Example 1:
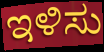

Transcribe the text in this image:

ಇಳಿಸು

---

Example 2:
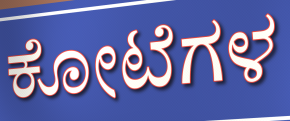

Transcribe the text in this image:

ಕೋಟೆಗಳ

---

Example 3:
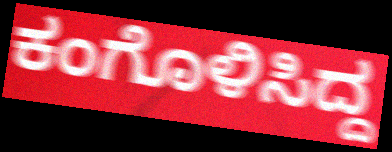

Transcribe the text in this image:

ಕಂಗೊಳಿಸಿದ್ದ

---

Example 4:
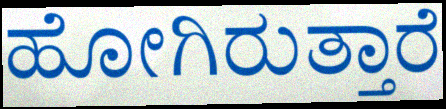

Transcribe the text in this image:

ಹೋಗಿರುತ್ತಾರೆ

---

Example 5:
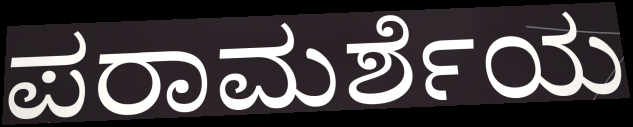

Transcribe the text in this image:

ಪರಾಮರ್ಶೆಯ